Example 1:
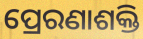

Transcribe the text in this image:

ପ୍ରେରଣାଶକ୍ତି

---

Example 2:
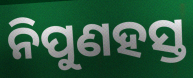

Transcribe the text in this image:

ନିପୁଣହସ୍ତ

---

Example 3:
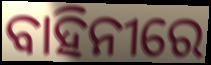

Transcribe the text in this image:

ବାହିନୀରେ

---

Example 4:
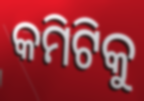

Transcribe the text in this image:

କମିଟିକୁ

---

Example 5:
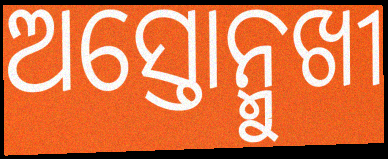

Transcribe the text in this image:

ଅସ୍ତୋନ୍ମୁଖୀ